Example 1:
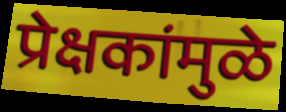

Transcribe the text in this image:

प्रेक्षकांमुळे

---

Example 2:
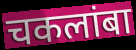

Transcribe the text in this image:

चकलांबा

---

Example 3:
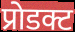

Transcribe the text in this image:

प्रोडक्ट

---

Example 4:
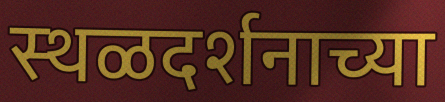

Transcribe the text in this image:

स्थळदर्शनाच्या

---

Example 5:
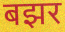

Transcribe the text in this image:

बझर